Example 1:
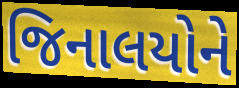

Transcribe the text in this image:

જિનાલયોને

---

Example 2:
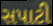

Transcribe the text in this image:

સપાટી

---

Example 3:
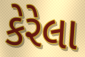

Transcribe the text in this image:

કેરેલા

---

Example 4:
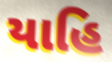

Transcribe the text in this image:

યાહિ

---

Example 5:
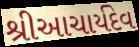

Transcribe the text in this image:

શ્રીઆચાર્યદેવ